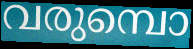
വരുമ്പൊ